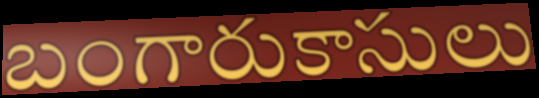
బంగారుకాసులు